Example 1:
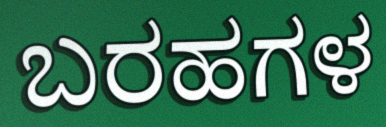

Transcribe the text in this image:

ಬರಹಗಳ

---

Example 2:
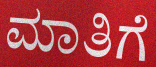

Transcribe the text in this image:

ಮಾತಿಗೆ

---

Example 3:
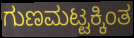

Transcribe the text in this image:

ಗುಣಮಟ್ಟಕ್ಕಿಂತ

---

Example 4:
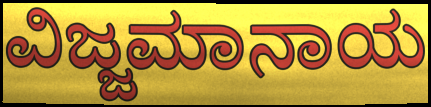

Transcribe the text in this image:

ವಿಜ್ಜಮಾನಾಯ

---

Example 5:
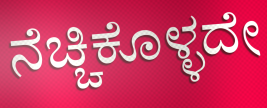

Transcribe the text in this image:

ನೆಚ್ಚಿಕೊಳ್ಳದೇ